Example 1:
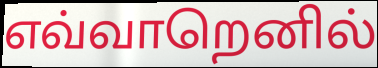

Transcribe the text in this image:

எவ்வாறெனில்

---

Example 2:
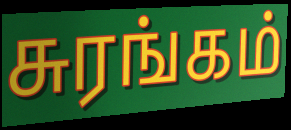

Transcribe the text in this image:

சுரங்கம்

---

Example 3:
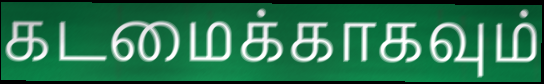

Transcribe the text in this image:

கடமைக்காகவும்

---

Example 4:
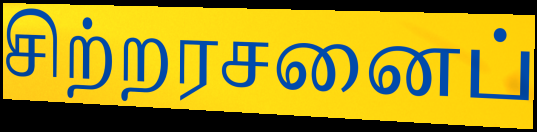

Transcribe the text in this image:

சிற்றரசனைப்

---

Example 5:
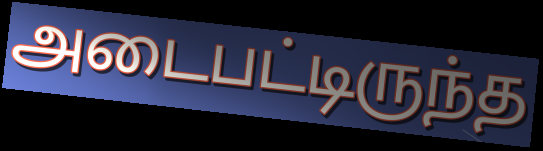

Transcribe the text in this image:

அடைபட்டிருந்த